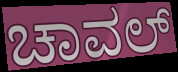
ಚಾವಲ್